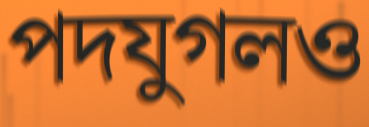
পদযুগলও